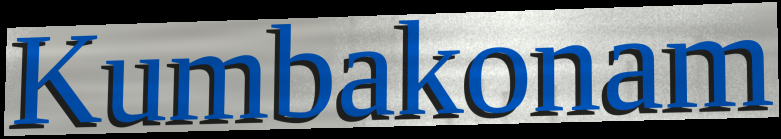
Kumbakonam